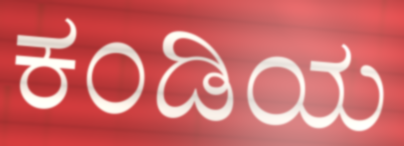
ಕಂಡಿಯ